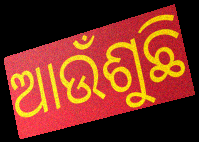
ଆଉଁଶୁଛି